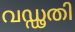
വഡ്ഢതി